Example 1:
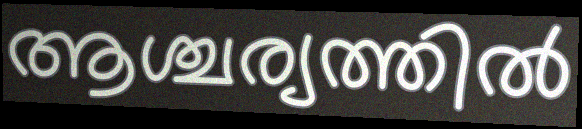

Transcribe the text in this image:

ആശ്ചര്യത്തിൽ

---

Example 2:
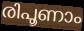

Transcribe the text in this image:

രിപൂണാം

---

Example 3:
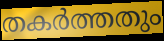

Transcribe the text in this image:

തകർത്തതും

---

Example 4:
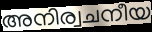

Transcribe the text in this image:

അനിര്വചനീയ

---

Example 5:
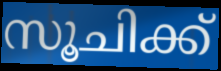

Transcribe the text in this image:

സൂചിക്ക്